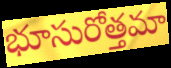
భూసురోత్తమా